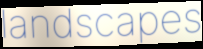
landscapes